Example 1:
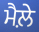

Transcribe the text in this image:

ਮੈਲ਼ੇ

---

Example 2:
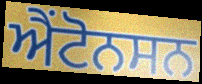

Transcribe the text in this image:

ਐਂਟੋਨਸਨ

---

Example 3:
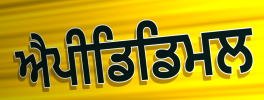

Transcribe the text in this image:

ਐਪੀਡਿਡਿਮਲ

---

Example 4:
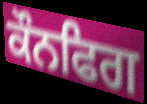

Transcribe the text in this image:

ਕੌਨਫਿਗ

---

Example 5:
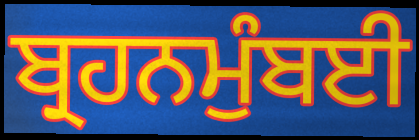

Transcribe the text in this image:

ਬ੍ਰਹਨਮੁੰਬਈ